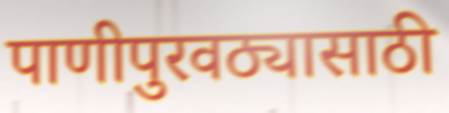
पाणीपुरवठ्यासाठी